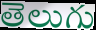
తెలుగు